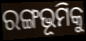
ରଙ୍ଗଭୂମିକୁ